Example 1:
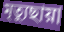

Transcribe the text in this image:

মৃত্যুছায়া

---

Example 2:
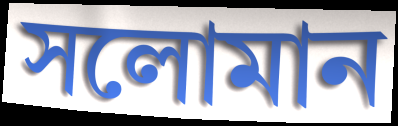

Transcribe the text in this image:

সলোমান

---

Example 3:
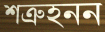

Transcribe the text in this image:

শত্রুহনন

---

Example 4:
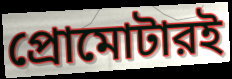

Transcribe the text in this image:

প্রোমোটারই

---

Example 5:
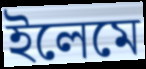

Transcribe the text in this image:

ইলেমে